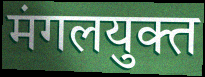
मंगलयुक्त